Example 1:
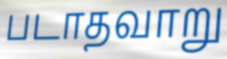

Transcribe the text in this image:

படாதவாறு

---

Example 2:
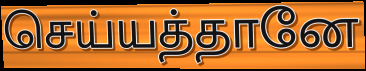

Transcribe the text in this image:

செய்யத்தானே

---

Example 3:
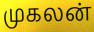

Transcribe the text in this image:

முகலன்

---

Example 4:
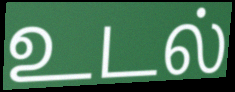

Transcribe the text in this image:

உடல்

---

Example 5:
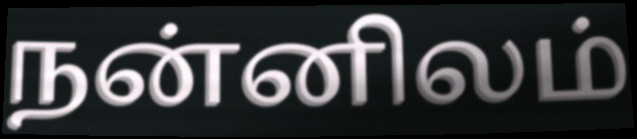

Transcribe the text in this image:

நன்னிலம்